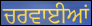
ਚਰਵਾਈਆਂ